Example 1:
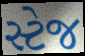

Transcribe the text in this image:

સ્ટેજ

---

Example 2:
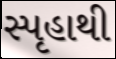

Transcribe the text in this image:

સ્પૃહાથી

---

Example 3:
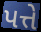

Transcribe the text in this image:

પત્તે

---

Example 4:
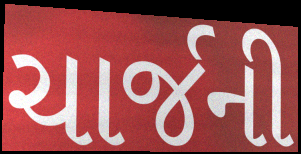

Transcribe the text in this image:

ચાર્જની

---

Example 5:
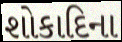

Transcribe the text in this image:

શોકાદિના